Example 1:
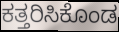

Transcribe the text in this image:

ಕತ್ತರಿಸಿಕೊಂಡ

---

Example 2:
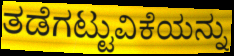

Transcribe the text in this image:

ತಡೆಗಟ್ಟುವಿಕೆಯನ್ನು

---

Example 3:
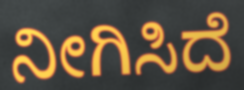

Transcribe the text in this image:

ನೀಗಿಸಿದೆ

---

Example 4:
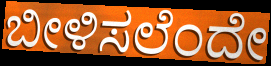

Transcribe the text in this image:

ಬೀಳಿಸಲೆಂದೇ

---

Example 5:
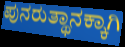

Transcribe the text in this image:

ಪುನರುತ್ಥಾನಕ್ಕಾಗಿ